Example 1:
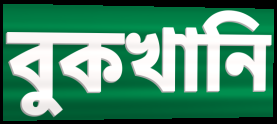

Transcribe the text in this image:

বুকখানি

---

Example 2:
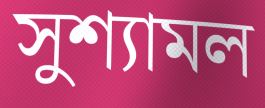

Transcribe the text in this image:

সুশ্যামল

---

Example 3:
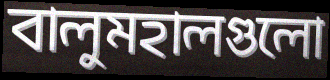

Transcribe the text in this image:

বালুমহালগুলো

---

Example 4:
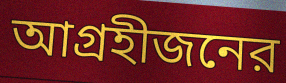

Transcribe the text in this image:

আগ্রহীজনের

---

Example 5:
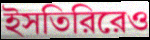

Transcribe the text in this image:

ইসতিরিরেও